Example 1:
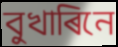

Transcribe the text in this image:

বুখাৰিনে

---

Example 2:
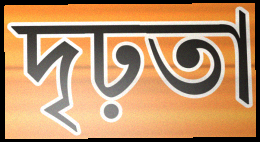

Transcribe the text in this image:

দৃঢ়তা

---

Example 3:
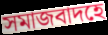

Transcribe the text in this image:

সমাজবাদহে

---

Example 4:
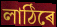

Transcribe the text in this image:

লাঠিৰে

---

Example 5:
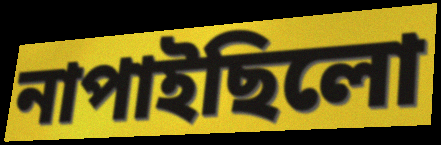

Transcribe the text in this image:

নাপাইছিলো